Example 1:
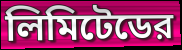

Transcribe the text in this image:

লিমিটেডের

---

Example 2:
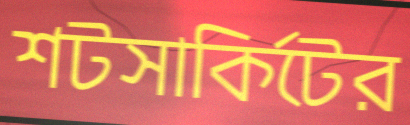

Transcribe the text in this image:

শটসার্কিটের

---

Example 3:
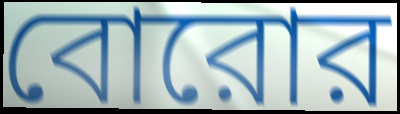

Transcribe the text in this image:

বোরোর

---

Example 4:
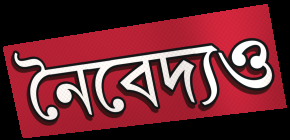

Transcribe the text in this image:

নৈবেদ্যও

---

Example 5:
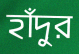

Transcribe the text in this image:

হাঁদুর